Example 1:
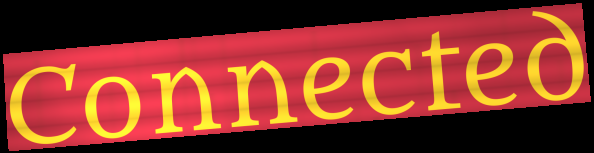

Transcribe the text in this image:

Connected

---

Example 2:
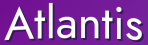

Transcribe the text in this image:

Atlantis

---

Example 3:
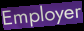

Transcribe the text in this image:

Employer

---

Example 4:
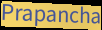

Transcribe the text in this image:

Prapancha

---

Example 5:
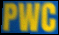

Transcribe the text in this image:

PWC